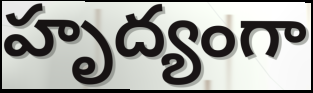
హృద్యంగా